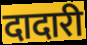
दादारी